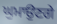
ਘੁਮਾਉਣਗੇ